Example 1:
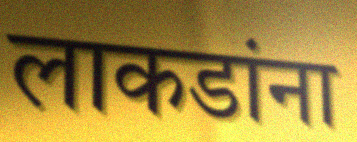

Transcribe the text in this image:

लाकडांना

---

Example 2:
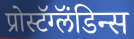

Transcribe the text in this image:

प्रोस्टॅग्लॅंडिन्स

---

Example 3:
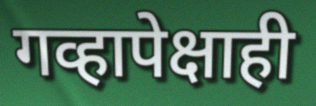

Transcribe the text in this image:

गव्हापेक्षाही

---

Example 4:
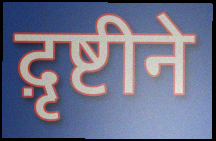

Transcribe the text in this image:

द़ृष्टीने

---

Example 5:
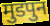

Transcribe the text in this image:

मुडपुन